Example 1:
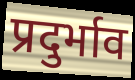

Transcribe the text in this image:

प्रदुर्भाव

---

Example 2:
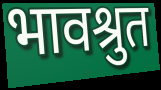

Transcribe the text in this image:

भावश्रुत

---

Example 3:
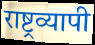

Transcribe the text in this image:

राष्ट्रव्यापी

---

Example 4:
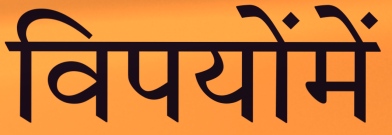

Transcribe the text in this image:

विपयोंमें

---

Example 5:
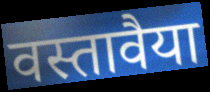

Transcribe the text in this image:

वस्तावैया